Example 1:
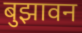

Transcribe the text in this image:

बुझावन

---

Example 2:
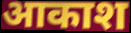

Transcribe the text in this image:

आकाश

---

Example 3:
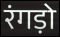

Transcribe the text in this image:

रंगड़ो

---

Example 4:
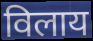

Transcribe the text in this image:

विलाय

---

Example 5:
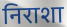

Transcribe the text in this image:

निराशा